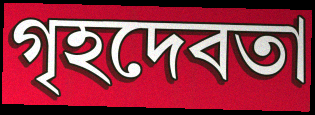
গৃহদেবতা